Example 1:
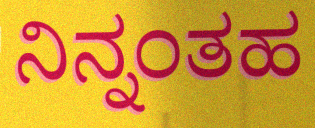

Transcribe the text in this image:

ನಿನ್ನಂತಹ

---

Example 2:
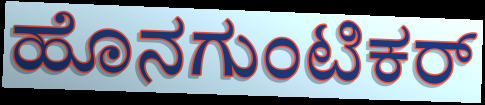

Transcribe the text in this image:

ಹೊನಗುಂಟಿಕರ್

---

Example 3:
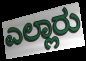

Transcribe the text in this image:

ಎಲ್ಲಾರು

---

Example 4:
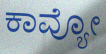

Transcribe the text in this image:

ಕಾವ್ಯೋ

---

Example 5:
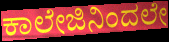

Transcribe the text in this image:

ಕಾಲೇಜಿನಿಂದಲೇ